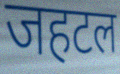
जहटल